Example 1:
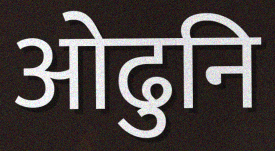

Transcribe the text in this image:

ओढुनि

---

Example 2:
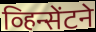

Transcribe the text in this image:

व्हिन्सेंटने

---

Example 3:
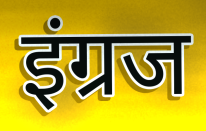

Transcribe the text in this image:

इंग्रज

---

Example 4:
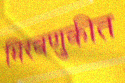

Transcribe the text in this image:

मिरवणुकीत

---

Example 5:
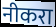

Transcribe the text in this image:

नीकरा